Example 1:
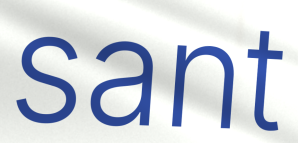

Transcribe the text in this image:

sant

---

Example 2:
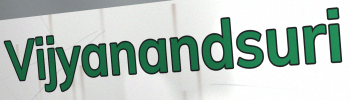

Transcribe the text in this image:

Vijyanandsuri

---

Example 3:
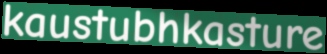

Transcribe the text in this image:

kaustubhkasture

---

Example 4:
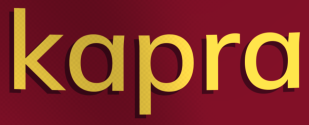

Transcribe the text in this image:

kapra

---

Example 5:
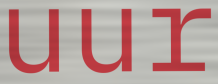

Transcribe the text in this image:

uur